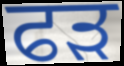
ਫੜ